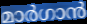
മാർഗാൻ